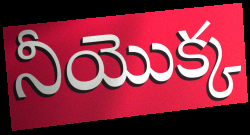
నీయొక్క